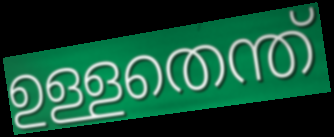
ഉള്ളതെന്ത്